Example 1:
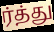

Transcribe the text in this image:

ர்த்து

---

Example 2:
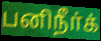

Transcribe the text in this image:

பனிநீர்க்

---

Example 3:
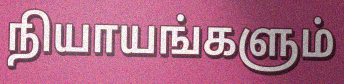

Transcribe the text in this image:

நியாயங்களும்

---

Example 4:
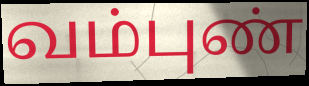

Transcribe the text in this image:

வம்புண்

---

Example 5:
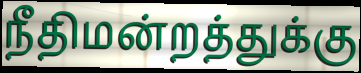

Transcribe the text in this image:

நீதிமன்றத்துக்கு